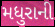
મધુરાની